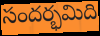
సందర్భమిది